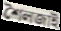
শৈলজাই